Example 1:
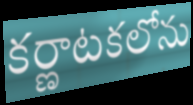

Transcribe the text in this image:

కర్ణాటకలోను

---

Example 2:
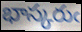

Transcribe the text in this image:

భాస్కరుఁ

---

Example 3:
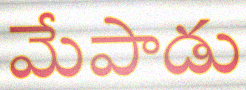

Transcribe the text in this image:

మేపాడు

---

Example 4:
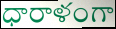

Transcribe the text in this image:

ధారాళంగా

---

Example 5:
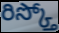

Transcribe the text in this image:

రిస్క్తో